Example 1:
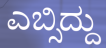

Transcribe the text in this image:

ಎಬ್ಸಿದ್ದು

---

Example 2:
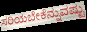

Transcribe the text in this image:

ಸರಿಯಬೇಕೆನ್ನುವಷ್ಟು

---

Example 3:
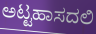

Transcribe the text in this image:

ಅಟ್ಟಹಾಸದಲಿ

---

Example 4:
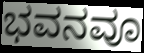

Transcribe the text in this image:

ಭವನವೂ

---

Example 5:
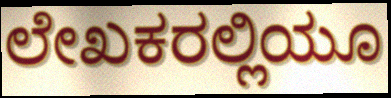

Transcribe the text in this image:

ಲೇಖಕರಲ್ಲಿಯೂ